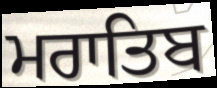
ਮਰਾਤਿਬ